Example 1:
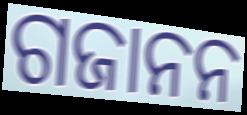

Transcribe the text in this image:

ଗଜାନନ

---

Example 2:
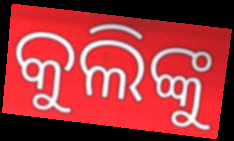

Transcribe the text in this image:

କୁଲିଙ୍କୁ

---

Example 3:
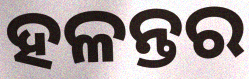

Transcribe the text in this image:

ହଳନ୍ତର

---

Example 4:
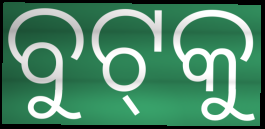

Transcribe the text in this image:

ବୁଟ୍‌କୁ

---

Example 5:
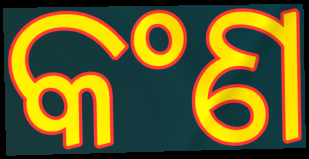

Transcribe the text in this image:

କଂଣ